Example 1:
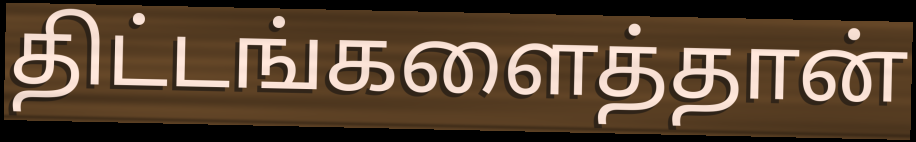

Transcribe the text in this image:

திட்டங்களைத்தான்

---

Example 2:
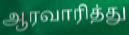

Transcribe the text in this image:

ஆரவாரித்து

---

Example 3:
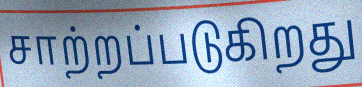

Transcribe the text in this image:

சாற்றப்படுகிறது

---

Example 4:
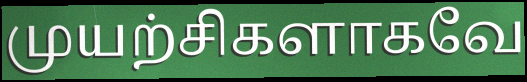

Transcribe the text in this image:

முயற்சிகளாகவே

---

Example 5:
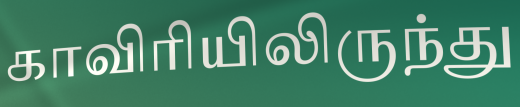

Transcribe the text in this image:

காவிரியிலிருந்து